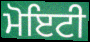
ਮੋਇਟੀ